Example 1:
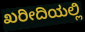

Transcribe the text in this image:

ಖರೀದಿಯಲ್ಲಿ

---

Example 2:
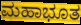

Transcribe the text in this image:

ಮಹಾಭೂತ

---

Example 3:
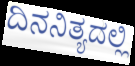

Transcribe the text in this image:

ದಿನನಿತ್ಯದಲ್ಲಿ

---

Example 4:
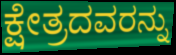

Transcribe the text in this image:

ಕ್ಷೇತ್ರದವರನ್ನು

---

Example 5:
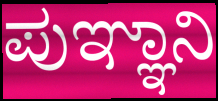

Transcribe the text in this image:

ಪುಞ್ಞಾನಿ